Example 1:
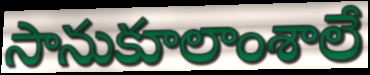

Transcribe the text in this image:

సానుకూలాంశాలే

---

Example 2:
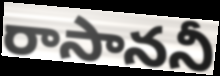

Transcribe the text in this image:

రాసాననీ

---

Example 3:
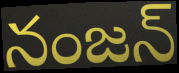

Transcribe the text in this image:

నంజన్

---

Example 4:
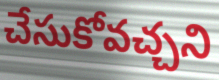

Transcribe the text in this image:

చేసుకోవచ్చని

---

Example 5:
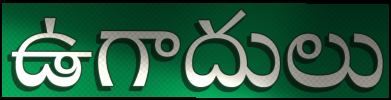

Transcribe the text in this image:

ఉగాదులు